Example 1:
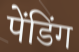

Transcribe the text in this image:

पेंडिंग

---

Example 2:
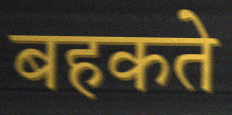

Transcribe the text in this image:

बहकते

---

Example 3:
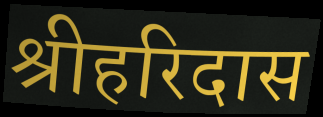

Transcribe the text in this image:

श्रीहरिदास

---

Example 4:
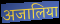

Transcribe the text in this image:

अजालिया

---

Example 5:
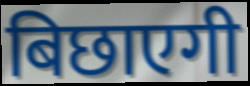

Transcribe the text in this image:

बिछाएगी